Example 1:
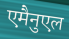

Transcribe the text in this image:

एमैनुएल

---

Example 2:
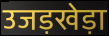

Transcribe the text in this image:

उजड़खेड़ा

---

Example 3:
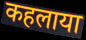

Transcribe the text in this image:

कहलाया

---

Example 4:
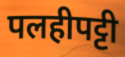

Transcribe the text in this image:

पलहीपट्टी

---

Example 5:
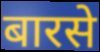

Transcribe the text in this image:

बारसे